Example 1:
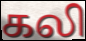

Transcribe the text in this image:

கலி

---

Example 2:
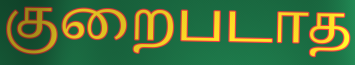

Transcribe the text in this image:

குறைபடாத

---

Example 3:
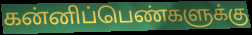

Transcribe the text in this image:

கன்னிப்பெண்களுக்கு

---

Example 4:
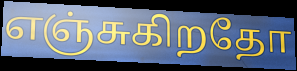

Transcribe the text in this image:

எஞ்சுகிறதோ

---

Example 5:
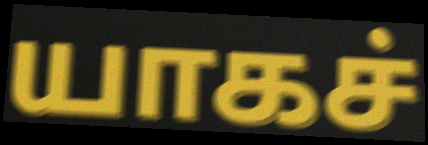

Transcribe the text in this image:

யாகச்